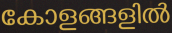
കോളങ്ങളിൽ